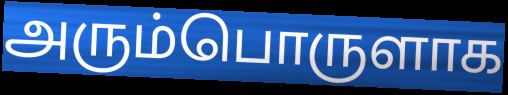
அரும்பொருளாக